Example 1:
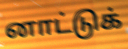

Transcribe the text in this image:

னாட்டுக்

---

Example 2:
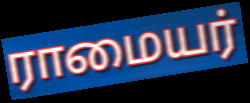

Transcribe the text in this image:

ராமையர்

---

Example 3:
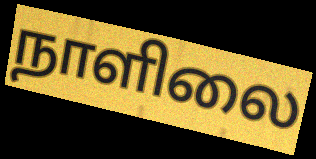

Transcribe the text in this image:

நாளிலை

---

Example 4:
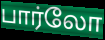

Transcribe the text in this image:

பார்லோ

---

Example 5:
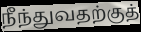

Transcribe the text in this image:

நீந்துவதற்குத்